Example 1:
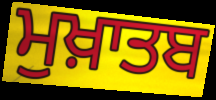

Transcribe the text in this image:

ਮੁਖ਼ਾਤਬ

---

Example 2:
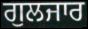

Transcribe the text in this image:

ਗੁਲਜਾਰ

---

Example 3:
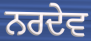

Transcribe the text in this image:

ਨਰਦੇਵ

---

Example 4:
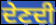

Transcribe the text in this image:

ਦੇਣਦੀ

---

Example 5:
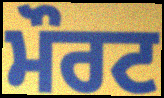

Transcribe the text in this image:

ਮੌਰਟ